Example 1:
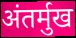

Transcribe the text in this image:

अंतर्मुख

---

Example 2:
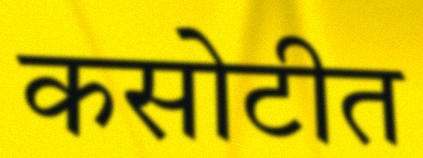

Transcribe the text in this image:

कसोटीत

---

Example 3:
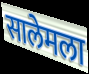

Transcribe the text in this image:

सालेमला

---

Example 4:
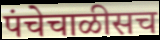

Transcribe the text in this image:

पंचेचाळीसच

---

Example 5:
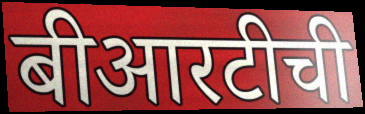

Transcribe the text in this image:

बीआरटीची